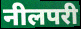
नीलपरी